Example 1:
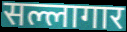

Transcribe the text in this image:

सल्लागार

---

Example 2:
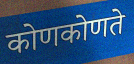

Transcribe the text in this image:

कोणकोणते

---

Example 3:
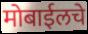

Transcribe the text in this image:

मोबाईलचे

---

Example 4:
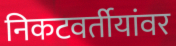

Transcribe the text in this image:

निकटवर्तीयांवर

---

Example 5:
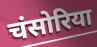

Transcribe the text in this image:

चंसोरिया